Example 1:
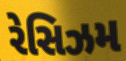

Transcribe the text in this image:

રેસિઝમ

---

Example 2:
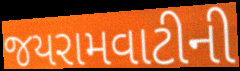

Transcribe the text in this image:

જયરામવાટીની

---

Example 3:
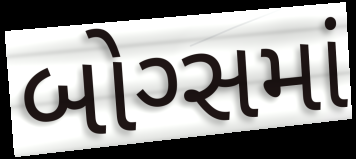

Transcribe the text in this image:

બોગ્સમાં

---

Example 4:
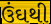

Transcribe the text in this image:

ઉંઘથી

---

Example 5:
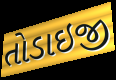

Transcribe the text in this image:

તોડાઇજી